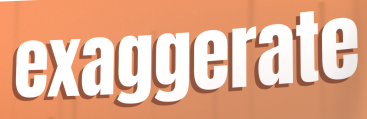
exaggerate